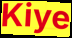
Kiye